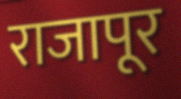
राजापूर